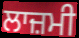
ਲਾਜ਼ਮੀ